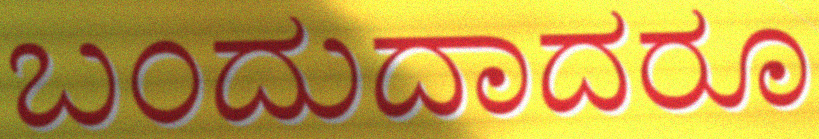
ಬಂದುದಾದರೂ